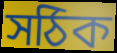
সঠিক